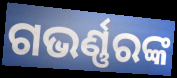
ଗଭର୍ଣ୍ଣରଙ୍କ